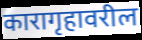
कारागृहावरील